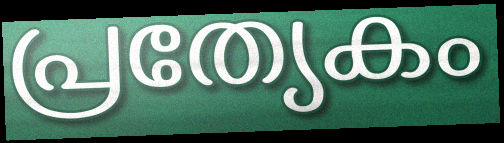
പ്രത്യേകം